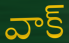
వాక్